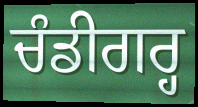
ਚੰਡੀਗਰ੍ਹ